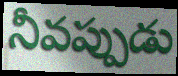
నీవప్పుడు